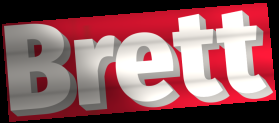
Brett